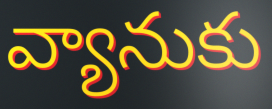
వ్యానుకు